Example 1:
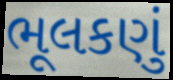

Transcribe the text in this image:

ભૂલકણું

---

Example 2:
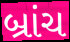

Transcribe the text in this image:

બ્રાંચ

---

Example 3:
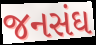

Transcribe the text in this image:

જનસંઘ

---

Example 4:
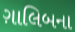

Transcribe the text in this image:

ગ઼ાલિબના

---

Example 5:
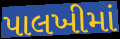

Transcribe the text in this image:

પાલખીમાં